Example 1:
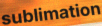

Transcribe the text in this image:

sublimation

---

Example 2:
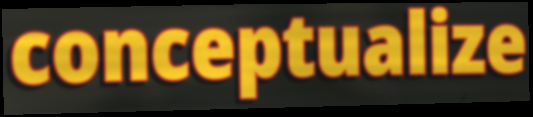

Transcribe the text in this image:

conceptualize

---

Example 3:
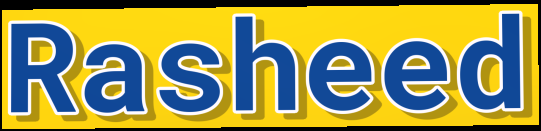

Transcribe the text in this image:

Rasheed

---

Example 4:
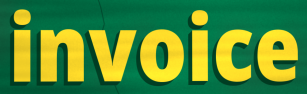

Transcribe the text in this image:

invoice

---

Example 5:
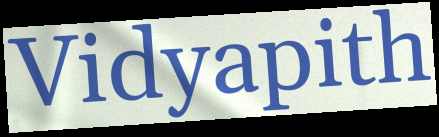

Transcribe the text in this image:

Vidyapith